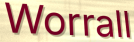
Worrall